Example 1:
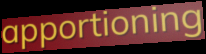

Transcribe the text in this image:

apportioning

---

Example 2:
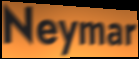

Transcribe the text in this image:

Neymar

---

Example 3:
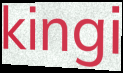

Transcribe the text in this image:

kingi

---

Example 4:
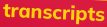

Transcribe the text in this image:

transcripts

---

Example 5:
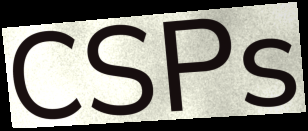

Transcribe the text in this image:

CSPs